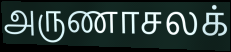
அருணாசலக்